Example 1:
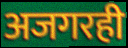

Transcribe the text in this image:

अजगरही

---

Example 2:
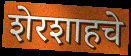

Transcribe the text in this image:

शेरशाहचे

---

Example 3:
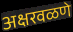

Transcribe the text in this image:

अक्षरवळणे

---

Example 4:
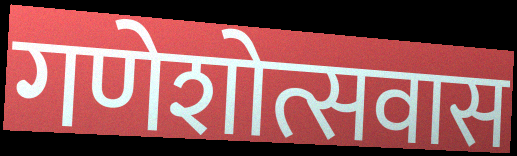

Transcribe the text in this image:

गणेशोत्सवास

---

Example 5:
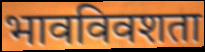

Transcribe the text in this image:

भावविवशता